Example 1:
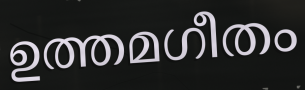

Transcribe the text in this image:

ഉത്തമഗീതം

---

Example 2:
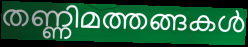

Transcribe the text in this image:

തണ്ണിമത്തങ്ങകൾ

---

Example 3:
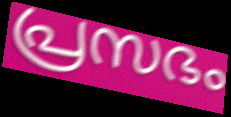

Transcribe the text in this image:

പ്രസഭം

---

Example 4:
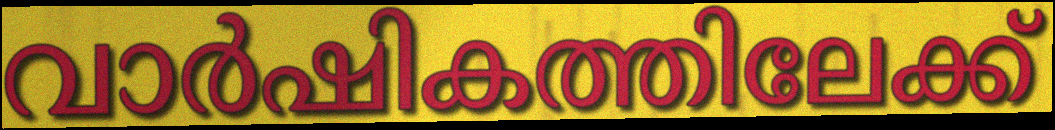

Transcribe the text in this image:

വാർഷികത്തിലേക്ക്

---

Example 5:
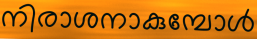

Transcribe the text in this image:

നിരാശനാകുമ്പോൾ